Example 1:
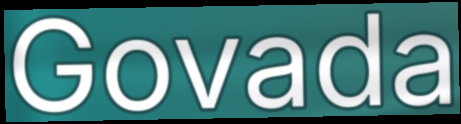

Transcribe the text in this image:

Govada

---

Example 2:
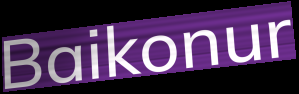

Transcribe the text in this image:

Baikonur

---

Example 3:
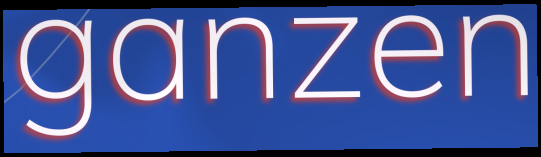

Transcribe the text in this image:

ganzen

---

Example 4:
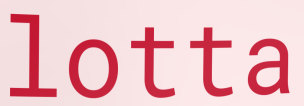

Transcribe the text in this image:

lotta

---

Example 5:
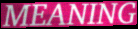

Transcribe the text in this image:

MEANING